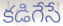
కడిగేసే